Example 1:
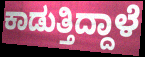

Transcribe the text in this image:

ಕಾಡುತ್ತಿದ್ದಾಳೆ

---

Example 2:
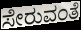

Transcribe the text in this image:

ಸೇರುವಂತೆ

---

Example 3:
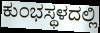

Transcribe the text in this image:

ಕುಂಭಸ್ಥಳದಲ್ಲಿ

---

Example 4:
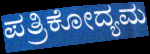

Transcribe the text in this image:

ಪತ್ರಿಕೋದ್ಯಮ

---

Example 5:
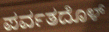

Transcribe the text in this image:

ಪರ್ವತದೊಳ್